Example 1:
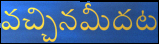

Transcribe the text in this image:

వచ్చినమీదట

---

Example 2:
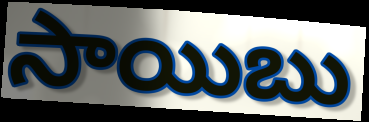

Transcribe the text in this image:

సాయిబు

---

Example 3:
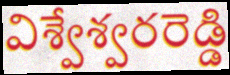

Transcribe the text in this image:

విశ్వేశ్వరరెడ్డి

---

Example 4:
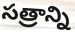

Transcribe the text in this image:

సత్రాన్ని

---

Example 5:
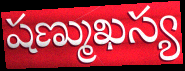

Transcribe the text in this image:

షణ్ముఖస్య